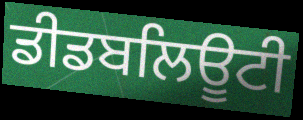
ਡੀਡਬਲਿਊਟੀ